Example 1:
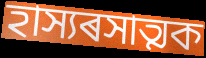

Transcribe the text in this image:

হাস্যৰসাত্মক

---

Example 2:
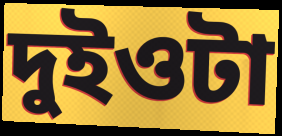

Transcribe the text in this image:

দুইওটা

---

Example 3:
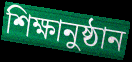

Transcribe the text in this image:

শিক্ষানুষ্ঠান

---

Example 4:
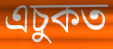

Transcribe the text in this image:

এচুকত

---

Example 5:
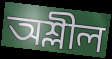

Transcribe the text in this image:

অশ্লীল